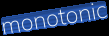
monotonic